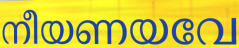
നീയണയവേ